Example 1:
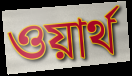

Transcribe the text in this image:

ওয়ার্থ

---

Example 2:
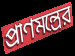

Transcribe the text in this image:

প্রাণমন্ত্রের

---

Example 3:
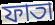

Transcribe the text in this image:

ফাতা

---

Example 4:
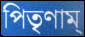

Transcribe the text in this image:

পিতৃণাম্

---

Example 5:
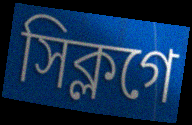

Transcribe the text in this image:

সিক্লগে